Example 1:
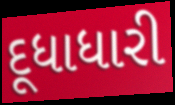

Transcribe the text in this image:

દૂધાધારી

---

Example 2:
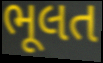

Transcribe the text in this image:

ભૂલત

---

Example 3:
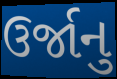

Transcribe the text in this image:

ઉર્જાનુ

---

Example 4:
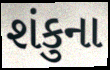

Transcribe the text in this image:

શંકુના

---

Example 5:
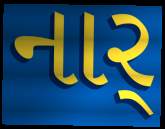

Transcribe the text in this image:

નાર્